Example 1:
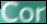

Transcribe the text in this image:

Cor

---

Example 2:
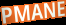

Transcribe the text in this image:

PMANE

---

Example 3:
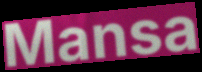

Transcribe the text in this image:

Mansa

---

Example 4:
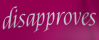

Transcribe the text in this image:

disapproves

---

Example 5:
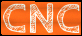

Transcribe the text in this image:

CNC